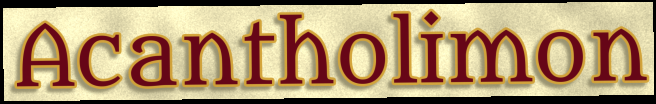
Acantholimon